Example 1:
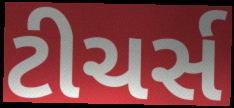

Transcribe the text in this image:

ટીચર્સ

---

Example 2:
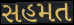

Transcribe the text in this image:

સહમત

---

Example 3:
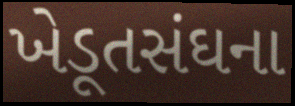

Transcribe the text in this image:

ખેડૂતસંઘના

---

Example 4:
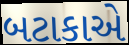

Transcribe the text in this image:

બટાકાએ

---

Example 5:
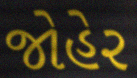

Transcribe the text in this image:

જોહેર